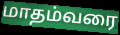
மாதம்வரை